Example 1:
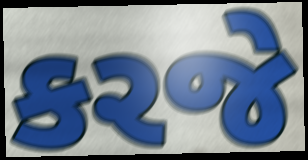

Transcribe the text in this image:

કરજે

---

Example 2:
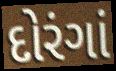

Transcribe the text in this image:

દોરંગાં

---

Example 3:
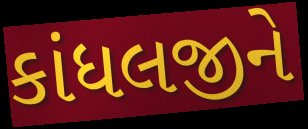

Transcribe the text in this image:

કાંધલજીને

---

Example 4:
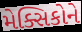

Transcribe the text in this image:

મેક્સિકોને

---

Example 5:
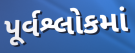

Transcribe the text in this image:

પૂર્વશ્લોકમાં